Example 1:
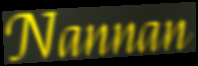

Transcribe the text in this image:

Nannan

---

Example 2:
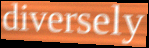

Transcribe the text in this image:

diversely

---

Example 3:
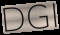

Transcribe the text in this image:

DGI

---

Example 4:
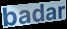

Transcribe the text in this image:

badar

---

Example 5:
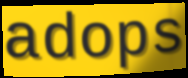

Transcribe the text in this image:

adops